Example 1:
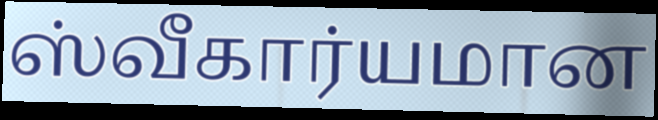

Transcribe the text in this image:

ஸ்வீகார்யமான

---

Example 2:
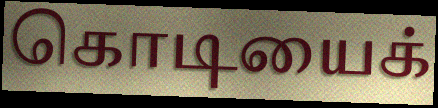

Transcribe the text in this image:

கொடியைக்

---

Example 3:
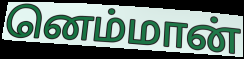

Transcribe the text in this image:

னெம்மான்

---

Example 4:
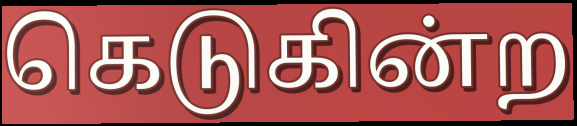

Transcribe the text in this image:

கெடுகின்ற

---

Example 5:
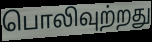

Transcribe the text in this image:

பொலிவுற்றது